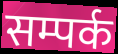
सम्‍पर्क